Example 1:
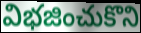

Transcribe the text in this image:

విభజించుకొని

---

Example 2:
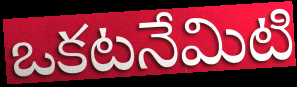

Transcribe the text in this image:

ఒకటనేమిటి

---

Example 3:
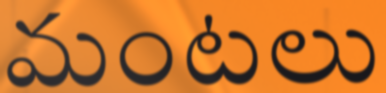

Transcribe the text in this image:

మంటలు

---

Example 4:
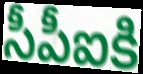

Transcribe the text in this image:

సీపీఐకి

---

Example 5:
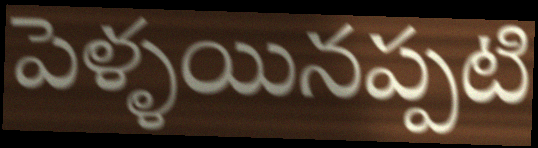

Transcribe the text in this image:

పెళ్ళయినప్పటి